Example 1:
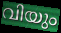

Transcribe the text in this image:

വിയും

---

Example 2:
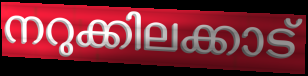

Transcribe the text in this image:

നറുക്കിലക്കാട്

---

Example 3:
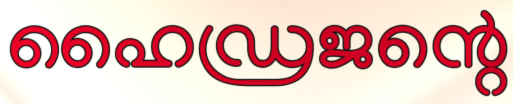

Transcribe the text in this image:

ഹൈഡ്രജന്റെ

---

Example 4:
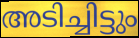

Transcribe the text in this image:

അടിച്ചിട്ടും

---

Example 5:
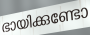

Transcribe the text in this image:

ഭായിക്കുണ്ടോ